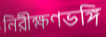
নিরীক্ষণভঙ্গি